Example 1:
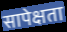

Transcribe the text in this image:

सापेक्षता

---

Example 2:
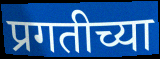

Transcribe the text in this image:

प्रगतीच्या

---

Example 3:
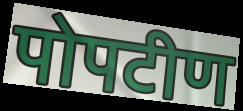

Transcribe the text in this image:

पोपटीण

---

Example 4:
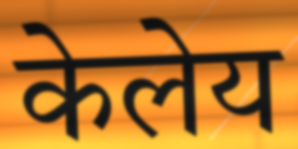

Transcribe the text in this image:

केलेय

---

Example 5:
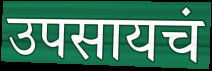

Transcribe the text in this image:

उपसायचं